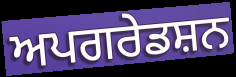
ਅਪਗਰੇਡਸ਼ਨ